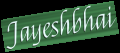
Jayeshbhai